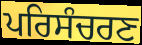
ਪਰਿਸੰਚਰਣ